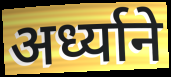
अर्ध्याने